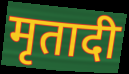
मृतादी